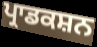
ਪ੍ਰਾਡਕਸ਼ਨ